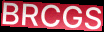
BRCGS